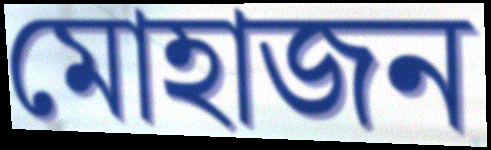
মোহাজন